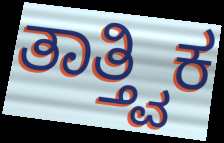
ತಾತ್ತ್ವಿಕ